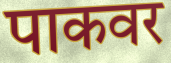
पाकवर